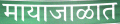
मायाजाळात